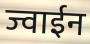
ज्वाईन